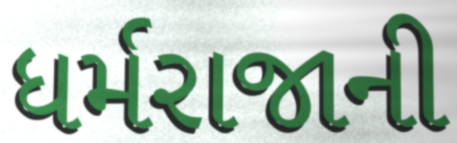
ધર્મરાજાની